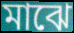
মাঝে